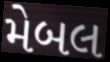
મેબલ